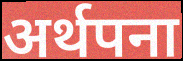
अर्थपना